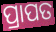
ପ୍ରାପତ